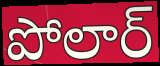
పోలార్